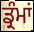
ਡ੍ਰੰਮਾਂ